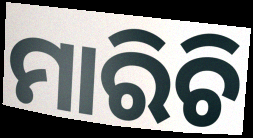
ମାରିଚି